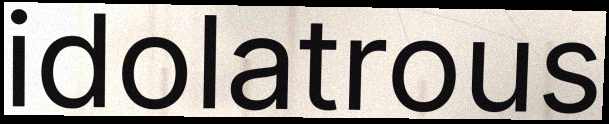
idolatrous